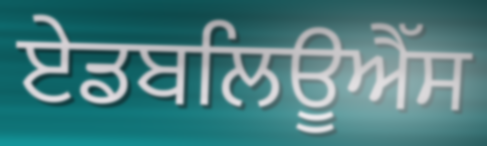
ਏਡਬਲਿਊਐੱਸ